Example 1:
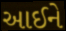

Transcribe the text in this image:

આઈને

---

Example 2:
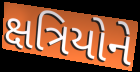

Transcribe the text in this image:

ક્ષત્રિયોને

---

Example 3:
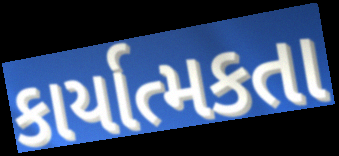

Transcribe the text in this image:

કાર્યાત્મકતા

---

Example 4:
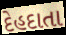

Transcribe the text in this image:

દેહદાતા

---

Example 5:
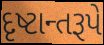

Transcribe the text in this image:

દૃષ્ટાન્તરૂપે